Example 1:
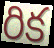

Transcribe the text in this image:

రిక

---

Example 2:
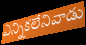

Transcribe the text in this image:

ఎన్నికలేనివాడు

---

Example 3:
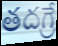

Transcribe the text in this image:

తదగ్రే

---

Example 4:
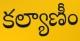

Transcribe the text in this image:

కల్యాణీం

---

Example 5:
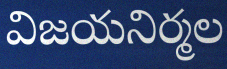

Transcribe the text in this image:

విజయనిర్మల